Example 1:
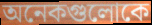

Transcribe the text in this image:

অনেকগুলোকে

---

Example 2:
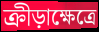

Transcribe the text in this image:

ক্রীড়াক্ষেত্রে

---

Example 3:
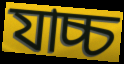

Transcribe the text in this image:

যাচ্চ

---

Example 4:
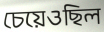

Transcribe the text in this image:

চেয়েওছিল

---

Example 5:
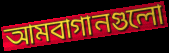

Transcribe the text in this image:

আমবাগানগুলো